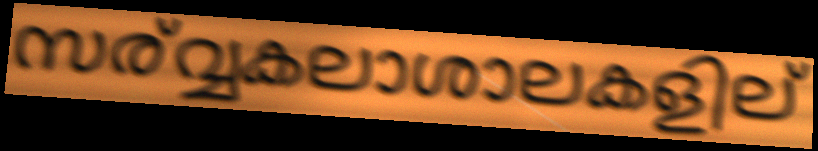
സര്വ്വകലാശാലകളില്